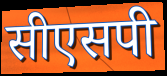
सीएसपी